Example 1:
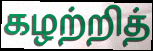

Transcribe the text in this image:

கழற்றித்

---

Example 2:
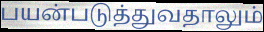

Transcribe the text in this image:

பயன்படுத்துவதாலும்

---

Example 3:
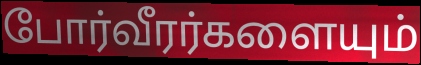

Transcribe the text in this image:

போர்வீரர்களையும்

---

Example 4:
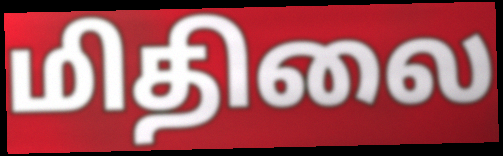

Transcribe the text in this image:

மிதிலை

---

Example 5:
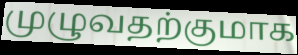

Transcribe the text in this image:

முழுவதற்குமாக